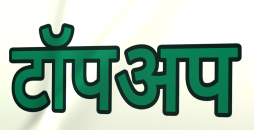
टॉपअप